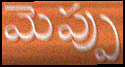
మెప్పు